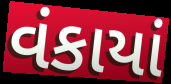
વંકાયાં